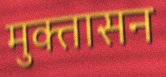
मुक्तासन